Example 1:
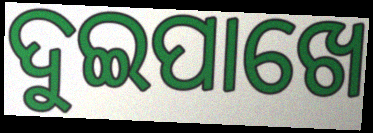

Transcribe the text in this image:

ଦୁଇପାଖେ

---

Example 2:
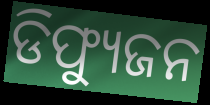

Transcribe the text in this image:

ଡିଫ୍ୟୁଜନ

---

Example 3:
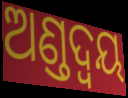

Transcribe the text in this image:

ଅଣ୍ଡଦ୍ୱୟ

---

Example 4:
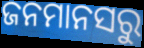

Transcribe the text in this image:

ଜନମାନସରୁ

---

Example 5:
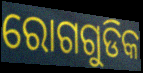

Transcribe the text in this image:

ରୋଗଗୁଡିକ